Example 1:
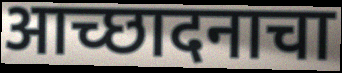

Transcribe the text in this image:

आच्छादनाचा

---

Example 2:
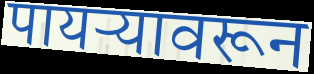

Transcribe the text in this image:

पायऱ्यावरून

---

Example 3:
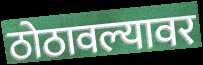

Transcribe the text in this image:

ठोठावल्यावर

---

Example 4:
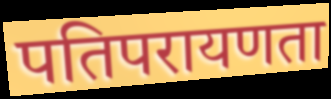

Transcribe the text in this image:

पतिपरायणता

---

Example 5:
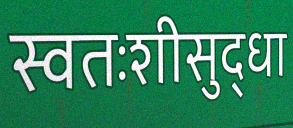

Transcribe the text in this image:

स्वतःशीसुद्धा